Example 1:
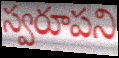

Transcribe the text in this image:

స్వరూపని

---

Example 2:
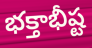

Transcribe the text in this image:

భక్తాభీష్ట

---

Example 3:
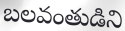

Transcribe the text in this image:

బలవంతుడిని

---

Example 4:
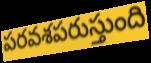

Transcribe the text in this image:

పరవశపరుస్తుంది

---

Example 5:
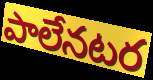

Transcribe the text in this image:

పాలేనటర